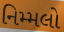
નિમ્મલો